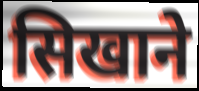
सिखाने